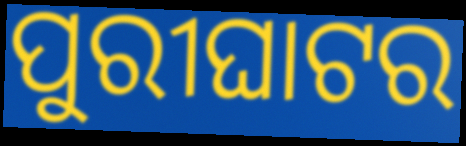
ପୁରୀଘାଟର